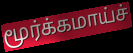
மூர்க்கமாய்ச்